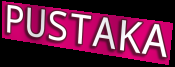
PUSTAKA